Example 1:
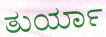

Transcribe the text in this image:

ತುರ್ಯಾ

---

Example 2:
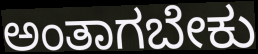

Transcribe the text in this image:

ಅಂತಾಗಬೇಕು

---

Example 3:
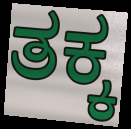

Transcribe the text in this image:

ತಕ್ಕ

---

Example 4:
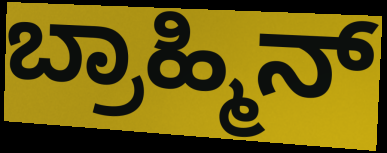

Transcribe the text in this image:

ಬ್ರಾಹ್ಮಿನ್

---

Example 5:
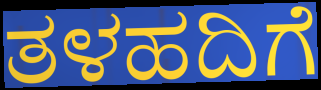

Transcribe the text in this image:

ತಳಹದಿಗೆ